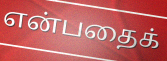
என்பதைக்